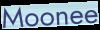
Moonee